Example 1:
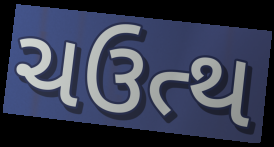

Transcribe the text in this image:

ચઉત્થ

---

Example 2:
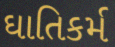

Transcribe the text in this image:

ઘાતિકર્મ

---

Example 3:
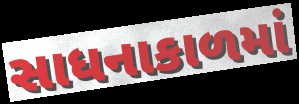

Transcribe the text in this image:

સાધનાકાળમાં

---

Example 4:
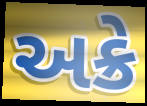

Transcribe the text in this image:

અક્રે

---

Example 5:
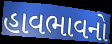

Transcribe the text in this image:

હાવભાવનો